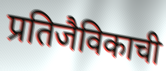
प्रतिजैविकाची